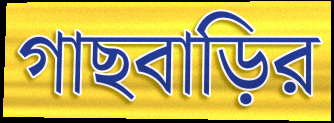
গাছবাড়ির